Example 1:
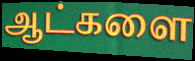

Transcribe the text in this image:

ஆட்களை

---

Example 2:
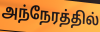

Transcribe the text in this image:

அந்நேரத்தில்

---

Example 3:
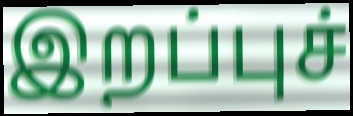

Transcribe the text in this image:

இறப்புச்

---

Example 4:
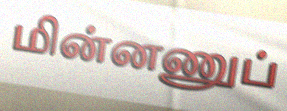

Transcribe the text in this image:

மின்னணுப்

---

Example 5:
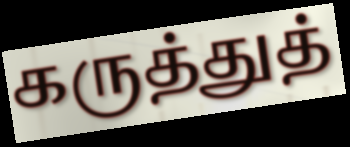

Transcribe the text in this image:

கருத்துத்